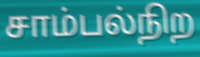
சாம்பல்நிற